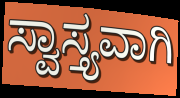
ಸ್ವಾಸ್ತ್ಯವಾಗಿ